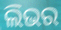
ଲିଭର